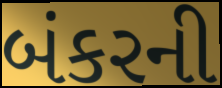
બંકરની